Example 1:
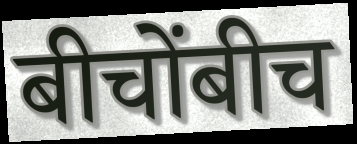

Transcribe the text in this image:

बीचोंबीच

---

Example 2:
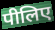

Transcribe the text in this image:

पीलिए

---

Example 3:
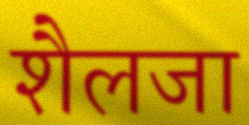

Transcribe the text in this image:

शैलजा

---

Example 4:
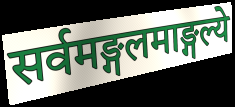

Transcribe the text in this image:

सर्वमङ्गलमाङ्गल्ये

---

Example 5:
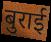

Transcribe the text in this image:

बुराई